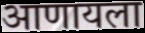
आणायला